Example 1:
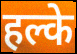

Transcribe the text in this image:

हल्के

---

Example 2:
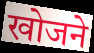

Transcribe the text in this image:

खोजने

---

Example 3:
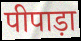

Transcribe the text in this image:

पीपाड़ा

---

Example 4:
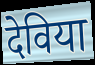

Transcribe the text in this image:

देविया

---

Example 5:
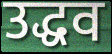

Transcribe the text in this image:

उद्धव